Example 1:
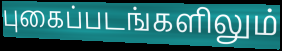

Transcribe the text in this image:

புகைப்படங்களிலும்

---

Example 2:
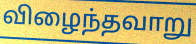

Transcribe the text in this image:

விழைந்தவாறு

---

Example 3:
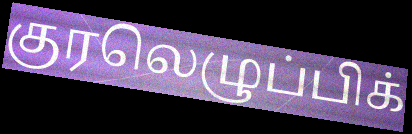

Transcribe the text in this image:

குரலெழுப்பிக்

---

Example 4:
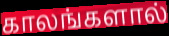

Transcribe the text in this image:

காலங்களால்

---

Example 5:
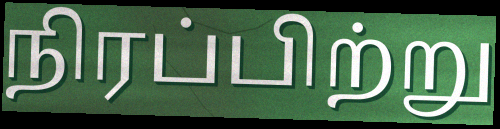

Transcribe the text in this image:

நிரப்பிற்று